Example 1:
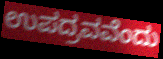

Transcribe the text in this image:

ಉಪದ್ರವವೆಂದು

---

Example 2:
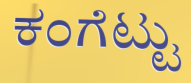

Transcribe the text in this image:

ಕಂಗೆಟ್ಟು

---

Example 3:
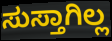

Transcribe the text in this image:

ಸುಸ್ತಾಗಿಲ್ಲ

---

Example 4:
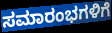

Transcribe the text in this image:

ಸಮಾರಂಭಗಳಿಗೆ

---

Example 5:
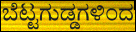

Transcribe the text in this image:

ಬೆಟ್ಟಗುಡ್ಡಗಳಿಂದ